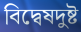
বিদ্বেষদুষ্ট